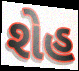
શેહ